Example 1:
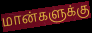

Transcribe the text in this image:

மான்களுக்கு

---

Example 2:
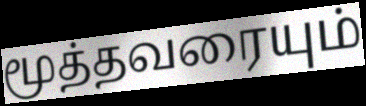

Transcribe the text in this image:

மூத்தவரையும்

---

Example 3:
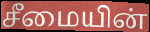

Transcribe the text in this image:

சீமையின்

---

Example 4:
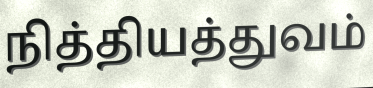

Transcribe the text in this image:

நித்தியத்துவம்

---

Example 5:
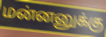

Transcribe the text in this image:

மன்னனுக்கு